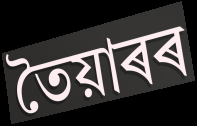
তৈয়াৰৰ